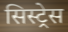
सिस्ट्रेस